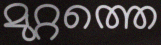
മുറ്റത്തെ